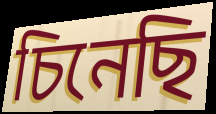
চিনেছি